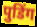
पुडिंग